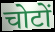
चोटों